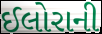
ઈલોરાની